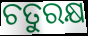
ଚତୁରକ୍ଷ